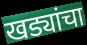
खड्यांचा